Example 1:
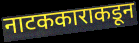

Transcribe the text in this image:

नाटककाराकडून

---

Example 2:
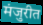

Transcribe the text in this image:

मंजुरीत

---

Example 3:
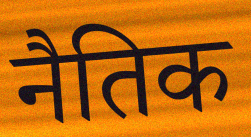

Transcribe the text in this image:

नैतिक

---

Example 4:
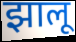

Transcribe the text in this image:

झालू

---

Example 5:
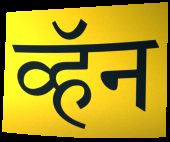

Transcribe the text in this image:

व्हॅन